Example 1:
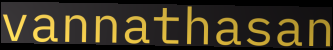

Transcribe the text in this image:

vannathasan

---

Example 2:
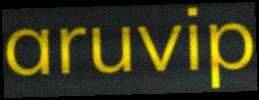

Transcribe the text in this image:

aruvip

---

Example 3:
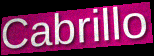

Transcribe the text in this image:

Cabrillo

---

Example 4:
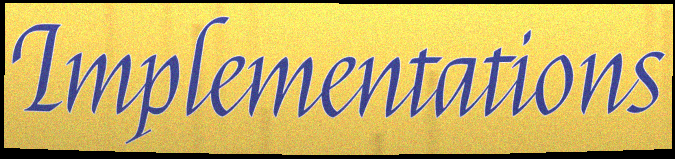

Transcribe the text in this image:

Implementations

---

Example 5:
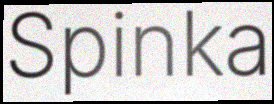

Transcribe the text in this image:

Spinka